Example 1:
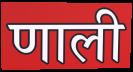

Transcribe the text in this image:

णाली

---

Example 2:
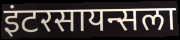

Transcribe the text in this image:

इंटरसायन्सला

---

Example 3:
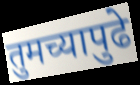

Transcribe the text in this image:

तुमच्यापुढे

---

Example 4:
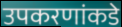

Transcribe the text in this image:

उपकरणांकडे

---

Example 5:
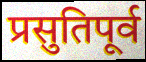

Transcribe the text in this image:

प्रसुतिपूर्व